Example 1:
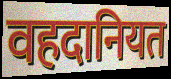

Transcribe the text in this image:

वहदानियत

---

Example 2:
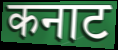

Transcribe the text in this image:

कनाट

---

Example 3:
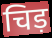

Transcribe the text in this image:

चिड़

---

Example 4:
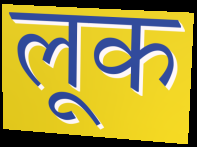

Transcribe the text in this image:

लूक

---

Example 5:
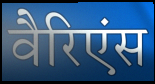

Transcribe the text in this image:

वैरिएंस